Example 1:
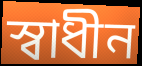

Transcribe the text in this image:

স্বাধীন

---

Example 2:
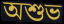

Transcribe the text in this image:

অশুভ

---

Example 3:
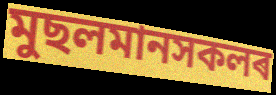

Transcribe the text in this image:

মুছলমানসকলৰ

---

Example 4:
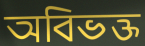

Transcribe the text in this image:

অবিভক্ত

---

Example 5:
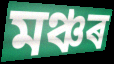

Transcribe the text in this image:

মঞ্চৰ